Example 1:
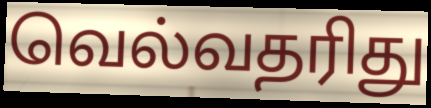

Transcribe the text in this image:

வெல்வதரிது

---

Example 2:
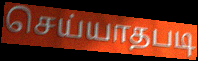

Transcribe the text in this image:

செய்யாதபடி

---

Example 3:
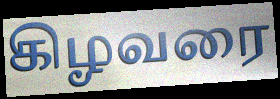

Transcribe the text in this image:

கிழவரை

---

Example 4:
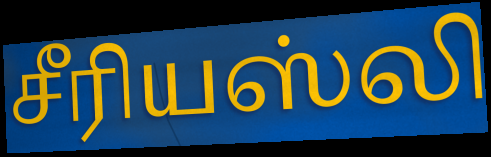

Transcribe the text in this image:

சீரியஸ்லி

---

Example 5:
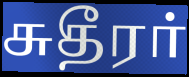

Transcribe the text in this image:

சுதீரர்